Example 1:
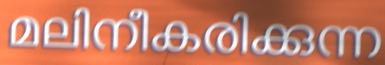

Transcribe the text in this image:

മലിനീകരിക്കുന്ന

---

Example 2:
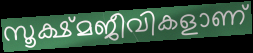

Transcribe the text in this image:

സൂക്ഷ്മജീവികളാണ്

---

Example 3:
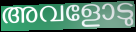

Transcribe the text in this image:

അവളോടു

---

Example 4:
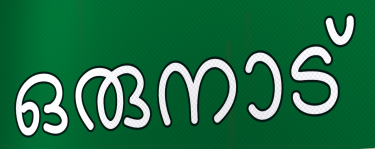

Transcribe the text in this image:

ഒരുനാട്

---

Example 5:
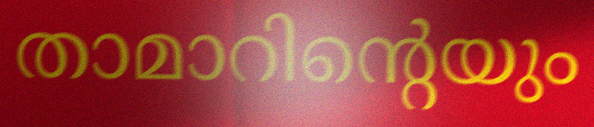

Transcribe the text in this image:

താമാറിന്റെയും